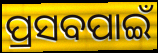
ପ୍ରସବପାଇଁ